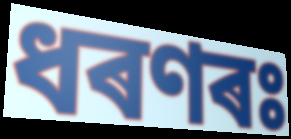
ধৰণৰঃ